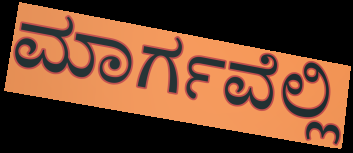
ಮಾರ್ಗವೆಲ್ಲಿ